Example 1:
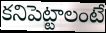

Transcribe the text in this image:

కనిపెట్టాలంటే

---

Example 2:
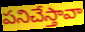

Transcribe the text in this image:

పనిచేస్తావా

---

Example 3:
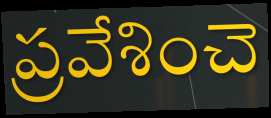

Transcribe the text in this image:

ప్రవేశించె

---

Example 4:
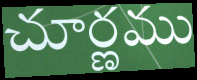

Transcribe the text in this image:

చూర్ణము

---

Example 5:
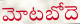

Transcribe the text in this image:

మోటబోదె